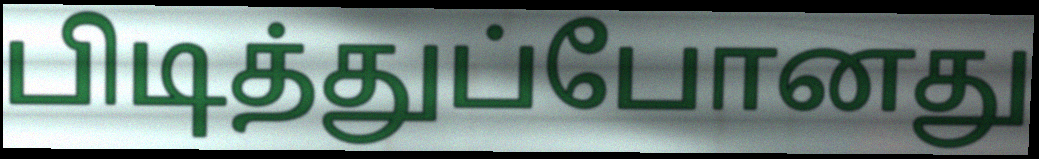
பிடித்துப்போனது